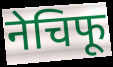
नेचिफू